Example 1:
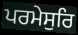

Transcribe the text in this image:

ਪਰਮੇਸੁਰਿ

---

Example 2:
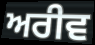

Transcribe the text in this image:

ਅਰੀਵ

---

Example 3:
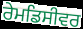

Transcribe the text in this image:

ਰੇਮਡਿਸੀਵਰ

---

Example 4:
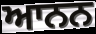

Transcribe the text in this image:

ਆਨਨ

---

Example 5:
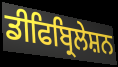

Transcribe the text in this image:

ਡੀਫਿਬ੍ਰਿਲੇਸ਼ਨ